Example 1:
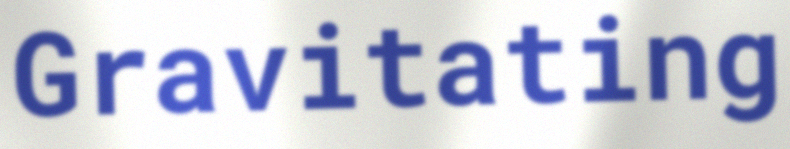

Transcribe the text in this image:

Gravitating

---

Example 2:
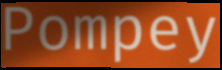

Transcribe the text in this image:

Pompey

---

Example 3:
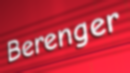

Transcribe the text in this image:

Berenger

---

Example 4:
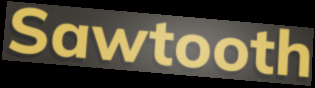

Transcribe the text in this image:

Sawtooth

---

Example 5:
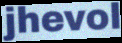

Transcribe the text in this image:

jhevol